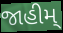
જાહીમ્